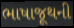
ભાષાજૂથની